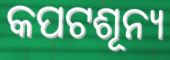
କପଟଶୂନ୍ୟ